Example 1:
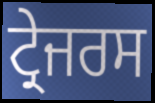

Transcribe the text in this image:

ਟ੍ਰੇਜਰਸ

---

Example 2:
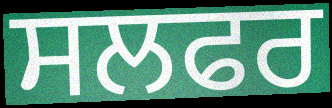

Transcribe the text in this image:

ਸਲਫਰ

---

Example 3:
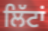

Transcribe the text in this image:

ਲਿੱਟਾਂ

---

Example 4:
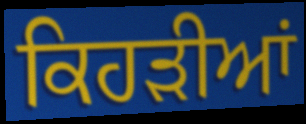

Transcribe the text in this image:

ਕਿਹੜੀਆਂ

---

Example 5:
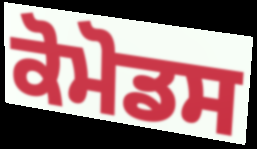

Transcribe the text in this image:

ਕੋਮੋਡਸ